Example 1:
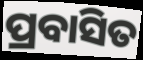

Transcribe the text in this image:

ପ୍ରବାସିତ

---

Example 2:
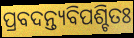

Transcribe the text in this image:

ପ୍ରବଦନ୍ତ୍ୟବିପଶ୍ଚିତଃ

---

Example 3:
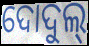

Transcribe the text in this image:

ଦୋଦୁଲ୍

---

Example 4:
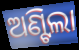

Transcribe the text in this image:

ଅଣ୍ଟିଲା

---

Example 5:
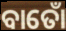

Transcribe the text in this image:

ବାତୋଁ